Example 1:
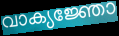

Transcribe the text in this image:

വാക്യജ്ഞോ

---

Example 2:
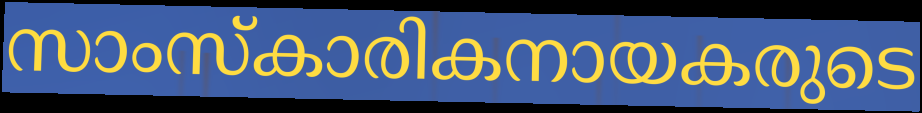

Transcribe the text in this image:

സാംസ്കാരികനായകരുടെ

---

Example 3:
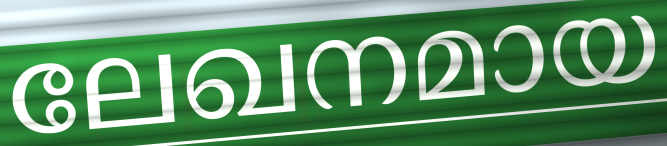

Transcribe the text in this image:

ലേഖനമായ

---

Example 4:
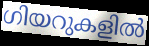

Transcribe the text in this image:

ഗിയറുകളിൽ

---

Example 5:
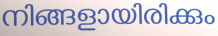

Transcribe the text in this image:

നിങ്ങളായിരിക്കും